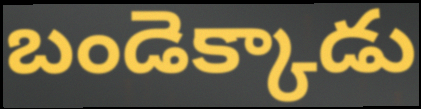
బండెక్కాడు